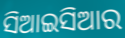
ସିଆଇସିଆର